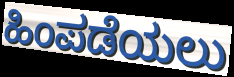
ಹಿಂಪಡೆಯಲು